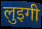
लुइगी